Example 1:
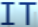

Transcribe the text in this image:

IT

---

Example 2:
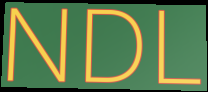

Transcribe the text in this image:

NDL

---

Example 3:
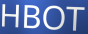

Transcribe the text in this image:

HBOT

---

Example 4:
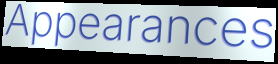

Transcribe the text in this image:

Appearances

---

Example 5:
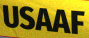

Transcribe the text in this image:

USAAF